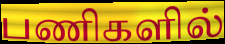
பணிகளில்